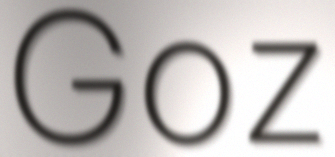
Goz